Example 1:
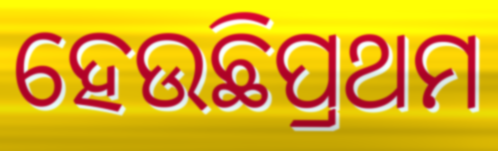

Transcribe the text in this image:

ହେଉଛିପ୍ରଥମ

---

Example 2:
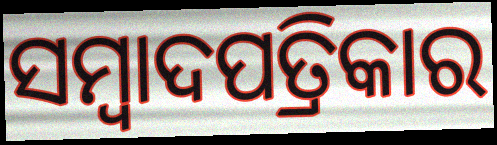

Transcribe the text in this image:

ସମ୍ବାଦପତ୍ରିକାର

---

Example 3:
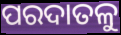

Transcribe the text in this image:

ପରଦାତଳୁ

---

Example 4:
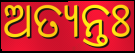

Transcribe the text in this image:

ଅତ୍ୟନ୍ତଃ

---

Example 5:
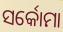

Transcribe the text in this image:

ସର୍କୋମା